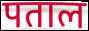
पताल